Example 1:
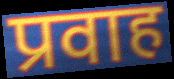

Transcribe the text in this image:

प्रवाह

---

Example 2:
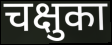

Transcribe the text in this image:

चक्षुका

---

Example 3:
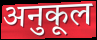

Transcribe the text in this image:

अनुकूल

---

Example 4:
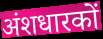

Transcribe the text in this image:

अंशधारकों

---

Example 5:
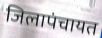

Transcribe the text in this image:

जिलापंचायत